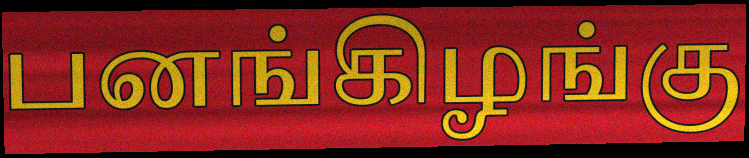
பனங்கிழங்கு